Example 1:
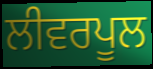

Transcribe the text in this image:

ਲੀਵਰਪੂਲ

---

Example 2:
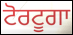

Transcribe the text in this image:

ਟੋਰਟੂਗਾ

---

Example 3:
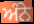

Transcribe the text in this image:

ਅੰਨੇ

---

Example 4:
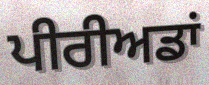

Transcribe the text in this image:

ਪੀਰੀਅਡਾਂ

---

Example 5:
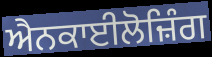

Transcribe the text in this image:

ਐਨਕਾਈਲੋਜ਼ਿੰਗ